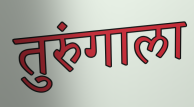
तुरुंगाला